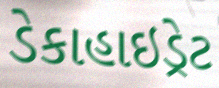
ડેકાહાઇડ્રેટ